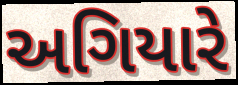
અગિયારે